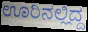
ಊರಿನಲ್ಲಿದ್ದ